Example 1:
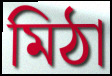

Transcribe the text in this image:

মিঠা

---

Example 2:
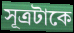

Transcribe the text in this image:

সূত্রটাকে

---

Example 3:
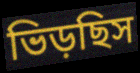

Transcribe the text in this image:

ভিড়ছিস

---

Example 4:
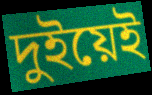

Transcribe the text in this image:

দুইয়েই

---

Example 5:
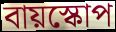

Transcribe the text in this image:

বায়স্কোপ